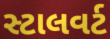
સ્ટાલવર્ટ